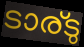
ടാര്ടു